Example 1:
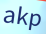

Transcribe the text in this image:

akp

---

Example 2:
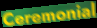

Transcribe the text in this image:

Ceremonial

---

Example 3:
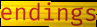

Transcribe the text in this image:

endings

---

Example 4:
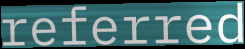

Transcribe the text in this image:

referred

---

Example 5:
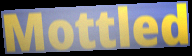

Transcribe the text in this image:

Mottled